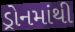
ડ્રોનમાંથી